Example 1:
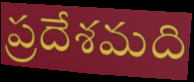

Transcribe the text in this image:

ప్రదేశమది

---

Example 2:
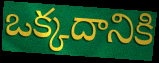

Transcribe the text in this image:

ఒక్కదానికి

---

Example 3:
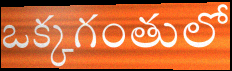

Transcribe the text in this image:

ఒక్కగంతులో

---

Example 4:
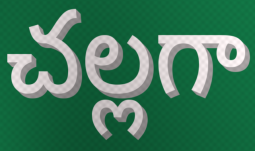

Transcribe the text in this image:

చల్లగా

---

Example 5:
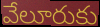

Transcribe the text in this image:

వేలూరుకు